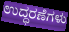
ಉದ್ಧರಣೆಗಳು